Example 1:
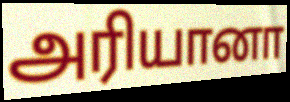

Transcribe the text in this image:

அரியானா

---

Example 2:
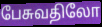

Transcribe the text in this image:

பேசுவதிலோ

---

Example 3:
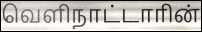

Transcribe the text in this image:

வெளிநாட்டாரின்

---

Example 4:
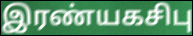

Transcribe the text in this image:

இரண்யகசிபு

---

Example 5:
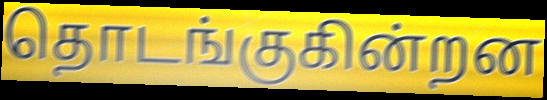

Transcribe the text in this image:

தொடங்குகின்றன